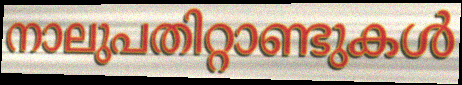
നാലുപതിറ്റാണ്ടുകൾ